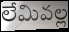
లేమివల్ల